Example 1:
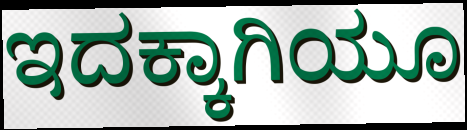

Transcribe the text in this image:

ಇದಕ್ಕಾಗಿಯೂ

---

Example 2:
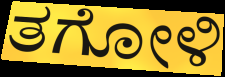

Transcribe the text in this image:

ತಗೋಳಿ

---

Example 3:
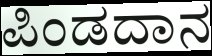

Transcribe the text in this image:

ಪಿಂಡದಾನ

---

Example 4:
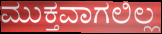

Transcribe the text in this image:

ಮುಕ್ತವಾಗಲಿಲ್ಲ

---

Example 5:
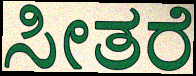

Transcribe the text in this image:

ಸೀತರೆ